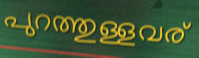
പുറത്തുള്ളവര്